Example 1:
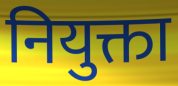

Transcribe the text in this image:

नियुक्ता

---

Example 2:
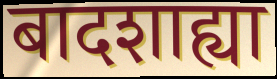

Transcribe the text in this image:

बादशाह्या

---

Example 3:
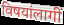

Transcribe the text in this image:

विषयांलागीं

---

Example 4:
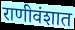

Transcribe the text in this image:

राणीवंशात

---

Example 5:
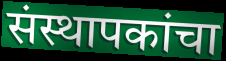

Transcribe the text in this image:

संस्थापकांचा